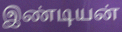
இண்டியன்